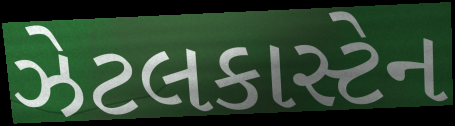
ઝેટલકાસ્ટેન